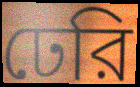
ঢেরি